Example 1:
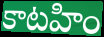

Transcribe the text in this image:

కాటహిం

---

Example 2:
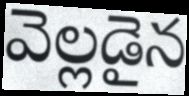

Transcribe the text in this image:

వెల్లడైన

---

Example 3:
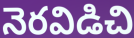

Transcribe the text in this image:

నెరవిడిచి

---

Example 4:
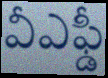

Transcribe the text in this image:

వీఎఫ్డీ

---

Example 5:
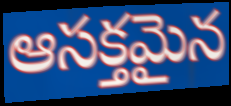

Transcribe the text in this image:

ఆసక్తమైన